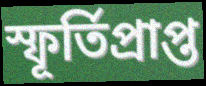
স্ফূর্তিপ্রাপ্ত